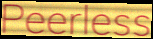
Peerless